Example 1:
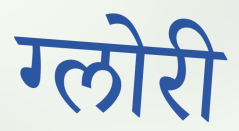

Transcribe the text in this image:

ग्लोरी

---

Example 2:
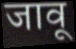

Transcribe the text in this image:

जावू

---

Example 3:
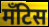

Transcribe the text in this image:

मँटिस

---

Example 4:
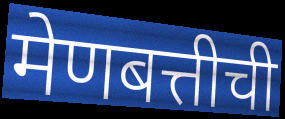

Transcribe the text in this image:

मेणबत्तीची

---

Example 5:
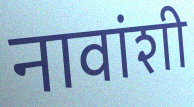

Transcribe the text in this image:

नावांशी